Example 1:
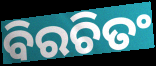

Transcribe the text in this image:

ବିରଚିତଂ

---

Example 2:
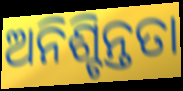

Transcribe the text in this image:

ଅନିଶ୍ଚିନ୍ତତା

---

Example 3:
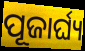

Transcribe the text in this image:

ପୂଜାର୍ଘ୍ୟ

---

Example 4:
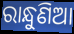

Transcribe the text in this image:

ରାନ୍ଧୁଣିଆ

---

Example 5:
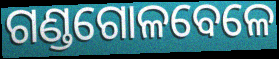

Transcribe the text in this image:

ଗଣ୍ଡଗୋଳବେଳେ